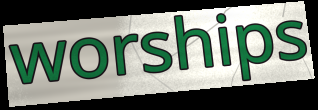
worships